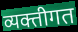
व्यक्तीगत